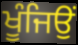
ਖੂੰਜਿਉਂ